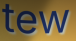
tew